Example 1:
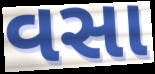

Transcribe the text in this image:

વસા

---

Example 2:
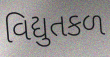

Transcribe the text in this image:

વિદ્યુતકળ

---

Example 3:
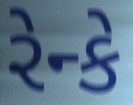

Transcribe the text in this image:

રેન્કે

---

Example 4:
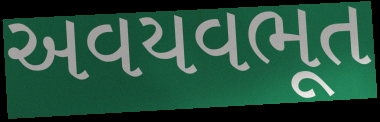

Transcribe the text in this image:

અવયવભૂત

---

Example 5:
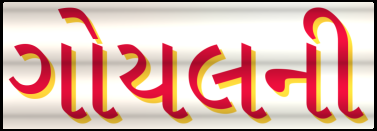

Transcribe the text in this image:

ગોયલની